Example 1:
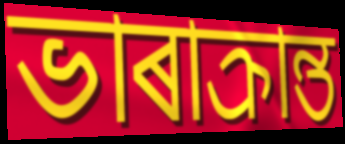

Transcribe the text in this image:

ভাৰাক্ৰান্ত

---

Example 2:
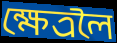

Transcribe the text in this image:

ক্ষেত্ৰলৈ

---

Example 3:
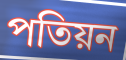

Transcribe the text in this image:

পতিয়ন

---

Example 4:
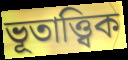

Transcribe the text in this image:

ভূতাত্ত্বিক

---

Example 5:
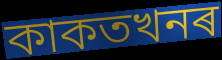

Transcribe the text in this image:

কাকতখনৰ